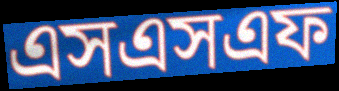
এসএসএফ